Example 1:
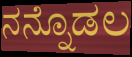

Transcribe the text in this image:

ನನ್ನೊಡಲ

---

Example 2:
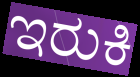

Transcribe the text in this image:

ಇರುಕಿ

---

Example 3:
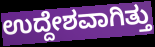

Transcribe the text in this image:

ಉದ್ದೇಶವಾಗಿತ್ತು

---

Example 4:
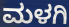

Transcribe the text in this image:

ಮಳಗಿ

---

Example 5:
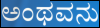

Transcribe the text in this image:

ಅಂಥವನು